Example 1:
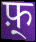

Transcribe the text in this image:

फ़्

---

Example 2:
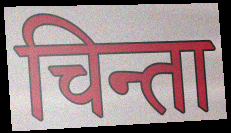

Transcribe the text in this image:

चिन्ता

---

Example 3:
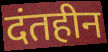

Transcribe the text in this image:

दंतहीन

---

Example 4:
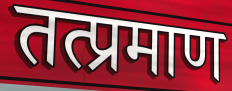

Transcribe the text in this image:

तत्प्रमाण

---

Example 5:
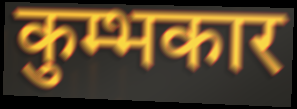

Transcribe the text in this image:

कुम्भकार